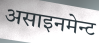
असाइनमेन्ट